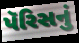
પૅરિસનું